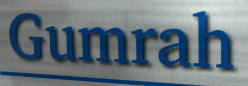
Gumrah